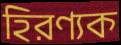
হিরণ্যক